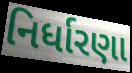
નિર્ધારણા